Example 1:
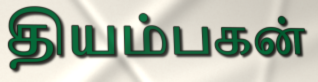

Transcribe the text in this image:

தியம்பகன்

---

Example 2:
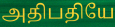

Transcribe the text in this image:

அதிபதியே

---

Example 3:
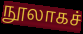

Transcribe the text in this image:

நூலாகச்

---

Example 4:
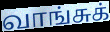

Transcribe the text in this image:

வாங்சுக்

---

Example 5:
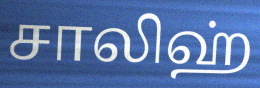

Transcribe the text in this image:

சாலிஹ்